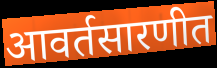
आवर्तसारणीत